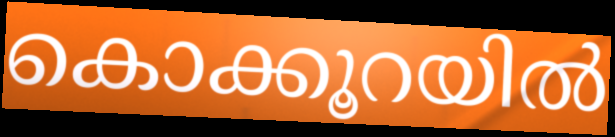
കൊക്കൂറയിൽ